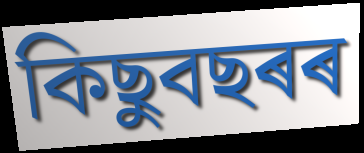
কিছুবছৰৰ